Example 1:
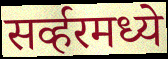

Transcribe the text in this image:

सर्व्हरमध्ये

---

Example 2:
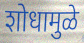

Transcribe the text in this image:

शोधामुळे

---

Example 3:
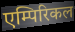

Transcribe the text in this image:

एम्पिरिकल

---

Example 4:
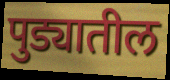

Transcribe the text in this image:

पुड्यातील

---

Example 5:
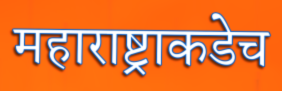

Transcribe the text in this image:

महाराष्ट्राकडेच